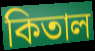
কিতাল